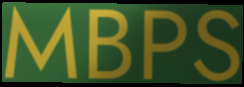
MBPS